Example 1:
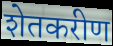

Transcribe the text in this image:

शेतकरीण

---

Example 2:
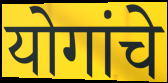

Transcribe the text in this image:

योगांचे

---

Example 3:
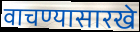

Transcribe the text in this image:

वाचण्यासारखे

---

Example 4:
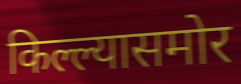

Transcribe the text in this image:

किल्ल्यासमोर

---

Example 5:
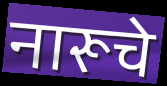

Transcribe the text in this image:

नारूचे